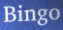
Bingo